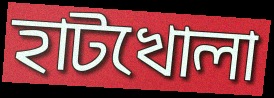
হাটখোলা